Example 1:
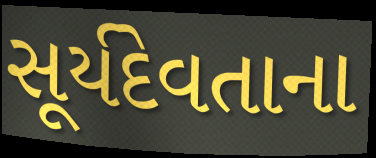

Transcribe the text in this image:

સૂર્યદેવતાના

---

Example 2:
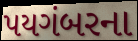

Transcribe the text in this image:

પયગંબરના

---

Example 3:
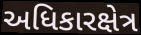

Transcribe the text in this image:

અધિકારક્ષેત્ર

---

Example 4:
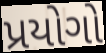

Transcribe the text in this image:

પ્રયોગો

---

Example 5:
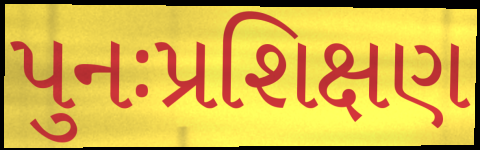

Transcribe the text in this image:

પુનઃપ્રશિક્ષણ